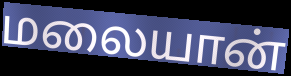
மலையான்